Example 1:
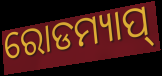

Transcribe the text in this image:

ରୋଡମ୍ୟାପ୍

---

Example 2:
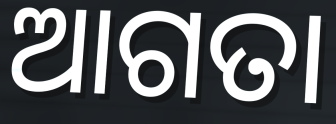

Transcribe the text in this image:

ଆଗତା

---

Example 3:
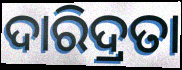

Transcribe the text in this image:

ଦାରିଦ୍ରତା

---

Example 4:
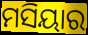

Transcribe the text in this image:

ମସିୟାର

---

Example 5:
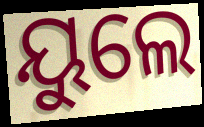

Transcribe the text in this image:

ୟୁଲେ